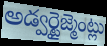
అడ్వర్టైజ్మెంట్లు